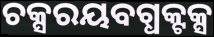
ଚକ୍ସରୟବଗ୍ଧକ୍ଟକ୍ସ